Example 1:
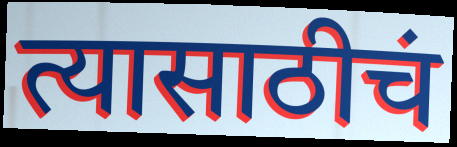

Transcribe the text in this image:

त्यासाठीचं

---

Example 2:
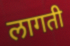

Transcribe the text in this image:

लागती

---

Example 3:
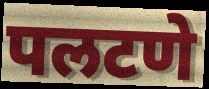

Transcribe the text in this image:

पलटणे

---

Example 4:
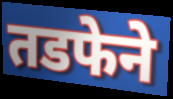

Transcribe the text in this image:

तडफेने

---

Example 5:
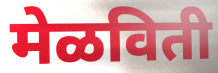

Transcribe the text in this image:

मेळविती